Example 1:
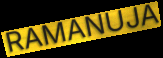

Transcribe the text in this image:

RAMANUJA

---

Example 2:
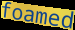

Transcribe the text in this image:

foamed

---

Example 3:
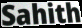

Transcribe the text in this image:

Sahith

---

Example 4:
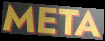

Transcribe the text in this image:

META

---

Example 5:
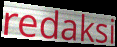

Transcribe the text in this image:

redaksi